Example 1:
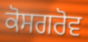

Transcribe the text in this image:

ਕੋਸਗਰੋਵ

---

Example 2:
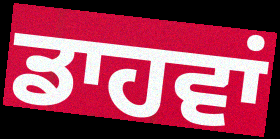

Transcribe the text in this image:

ਡਾਹਵਾਂ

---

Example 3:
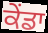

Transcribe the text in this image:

ਕੇਂਡਾ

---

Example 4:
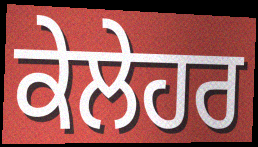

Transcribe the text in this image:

ਕੇਲੇਹਰ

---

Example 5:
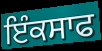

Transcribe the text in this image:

ਇੰਕਸਾਫ